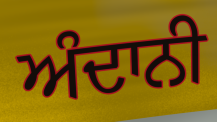
ਅੰਦਾਨੀ